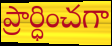
ప్రార్ధించగా